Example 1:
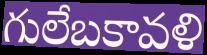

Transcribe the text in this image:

గులేబకావళి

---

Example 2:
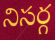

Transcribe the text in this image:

నిసర్గ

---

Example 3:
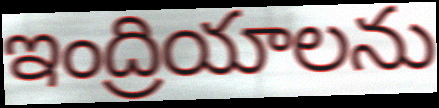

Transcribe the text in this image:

ఇంద్రియాలను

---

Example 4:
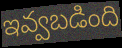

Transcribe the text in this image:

ఇవ్వబడింది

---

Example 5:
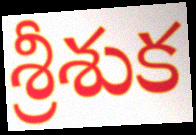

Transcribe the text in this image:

శ్రీశుక